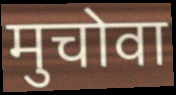
मुचोवा